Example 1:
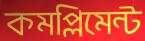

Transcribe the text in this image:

কমপ্লিমেন্ট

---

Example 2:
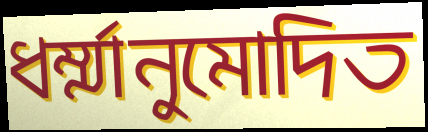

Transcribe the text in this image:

ধর্ম্মানুমোদিত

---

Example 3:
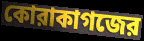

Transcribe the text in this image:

কোরাকাগজের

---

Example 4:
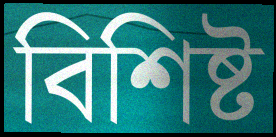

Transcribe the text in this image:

বিশিষ্ট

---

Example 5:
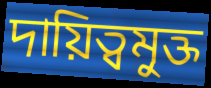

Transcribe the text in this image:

দায়িত্বমুক্ত